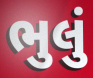
ભુલું